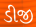
ડીજી